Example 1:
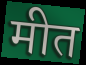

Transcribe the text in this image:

मीत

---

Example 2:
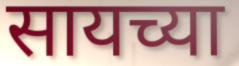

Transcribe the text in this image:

सायच्या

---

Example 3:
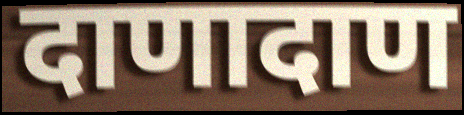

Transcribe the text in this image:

दाणादाण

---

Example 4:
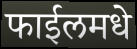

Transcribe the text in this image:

फाईलमधे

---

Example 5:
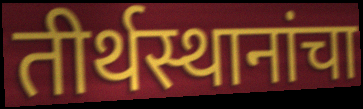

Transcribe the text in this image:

तीर्थस्थानांचा